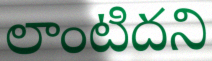
లాంటిదని